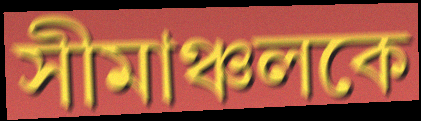
সীমাঞ্চলকে